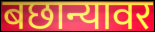
बछान्यावर